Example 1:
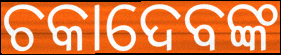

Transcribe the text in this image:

ଚକାଦେବଙ୍କ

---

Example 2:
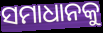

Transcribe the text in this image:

ସମାଧାନକୁ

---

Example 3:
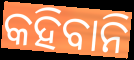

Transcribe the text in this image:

କହିବାନି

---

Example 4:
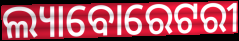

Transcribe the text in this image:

ଲ୍ୟାବୋରେଟରୀ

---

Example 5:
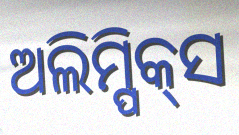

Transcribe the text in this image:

ଅଲିମ୍ପିକ୍‌ସ